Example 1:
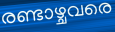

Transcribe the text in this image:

രണ്ടാഴ്ചവരെ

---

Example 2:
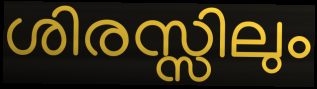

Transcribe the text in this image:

ശിരസ്സിലും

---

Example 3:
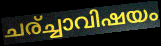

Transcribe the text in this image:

ചര്ച്ചാവിഷയം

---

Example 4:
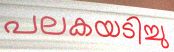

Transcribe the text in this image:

പലകയടിച്ചു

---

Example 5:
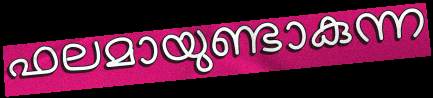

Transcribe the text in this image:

ഫലമായുണ്ടാകുന്ന